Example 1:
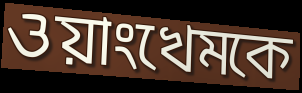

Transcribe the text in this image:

ওয়াংখেমকে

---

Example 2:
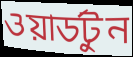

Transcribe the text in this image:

ওয়ার্ডটুন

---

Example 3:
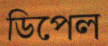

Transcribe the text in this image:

ডিপেল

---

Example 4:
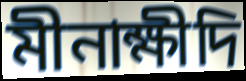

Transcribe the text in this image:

মীনাক্ষীদি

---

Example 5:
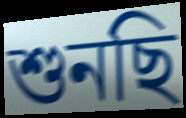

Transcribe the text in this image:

শুনছি